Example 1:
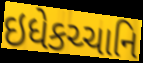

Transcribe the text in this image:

ઇધેકચ્ચાનિ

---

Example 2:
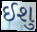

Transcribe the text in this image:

ઈશુ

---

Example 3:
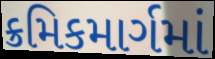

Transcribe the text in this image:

ક્રમિકમાર્ગમાં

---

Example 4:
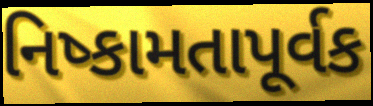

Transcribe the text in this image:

નિષ્કામતાપૂર્વક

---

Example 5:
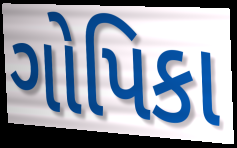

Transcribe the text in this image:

ગોપિકા